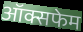
ऑक्सफेम